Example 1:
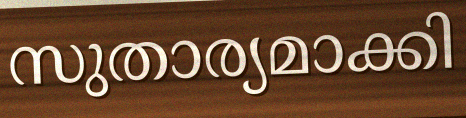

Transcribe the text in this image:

സുതാര്യമാക്കി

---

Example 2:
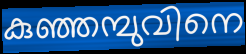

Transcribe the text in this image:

കുഞ്ഞമ്പുവിനെ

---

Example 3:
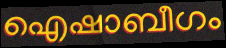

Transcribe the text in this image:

ഐഷാബീഗം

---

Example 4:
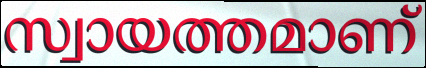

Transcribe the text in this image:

സ്വായത്തമാണ്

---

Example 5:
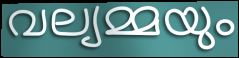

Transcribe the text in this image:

വല്യമ്മയും